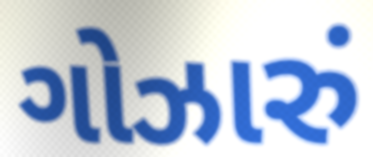
ગોઝારું